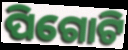
ପିଗୋଟି